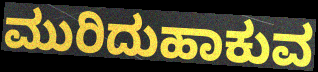
ಮುರಿದುಹಾಕುವ